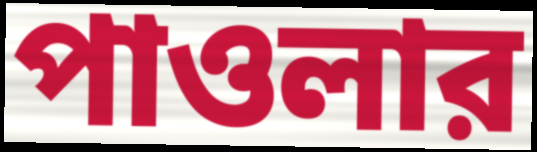
পাওলার